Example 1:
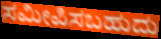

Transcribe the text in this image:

ಸಮೀಪಿಸಬಹುದು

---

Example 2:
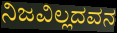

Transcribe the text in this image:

ನಿಜವಿಲ್ಲದವನ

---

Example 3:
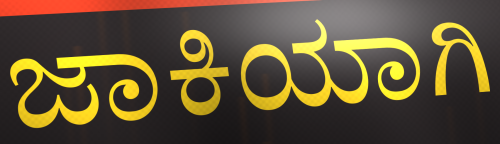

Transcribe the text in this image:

ಜಾಕಿಯಾಗಿ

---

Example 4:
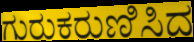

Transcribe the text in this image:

ಗುರುಕರುಣಿಸಿದ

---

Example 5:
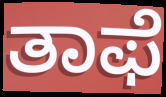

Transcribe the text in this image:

ತಾಫೆ